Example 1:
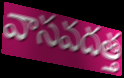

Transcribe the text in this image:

వాసవదత్త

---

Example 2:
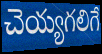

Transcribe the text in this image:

చెయ్యగలిగే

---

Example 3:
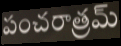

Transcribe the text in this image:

పంచరాత్రమ్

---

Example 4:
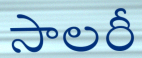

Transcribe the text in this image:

సాలరీ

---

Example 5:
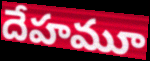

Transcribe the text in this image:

దేహమూ